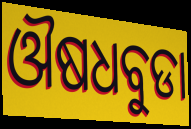
ଔଷଧବୁଡା